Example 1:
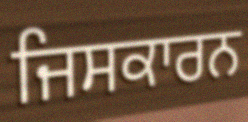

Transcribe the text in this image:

ਜਿਸਕਾਰਨ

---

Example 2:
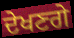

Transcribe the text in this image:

ਦੇਖਣਗੇ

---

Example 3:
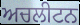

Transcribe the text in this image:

ਅਚਲੀਟਨ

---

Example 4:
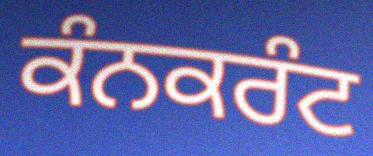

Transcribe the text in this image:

ਕੰਨਕਰੰਟ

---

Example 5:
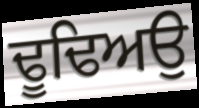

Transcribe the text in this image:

ਢੂਢਿਅਉ